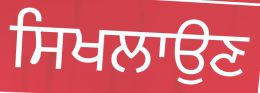
ਸਿਖਲਾਉਣ